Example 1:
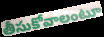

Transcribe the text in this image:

తీసుకోవాలంటూ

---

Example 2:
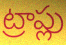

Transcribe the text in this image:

ట్రాప్లు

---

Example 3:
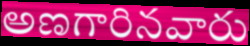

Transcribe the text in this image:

అణగారినవారు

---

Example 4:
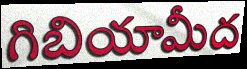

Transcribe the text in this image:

గిబియామీద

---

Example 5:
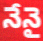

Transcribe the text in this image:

నేనై